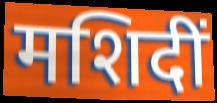
मशिदीं